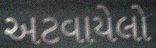
અટવાયેલો